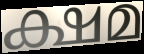
ക്ഷമ